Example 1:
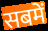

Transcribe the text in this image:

सबमें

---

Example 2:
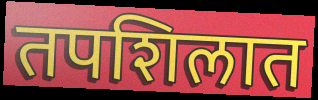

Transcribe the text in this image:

तपशिलात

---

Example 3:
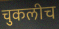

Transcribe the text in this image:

चुकलीच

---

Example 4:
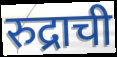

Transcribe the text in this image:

रुद्राची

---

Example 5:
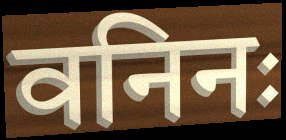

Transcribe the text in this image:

वनिनः